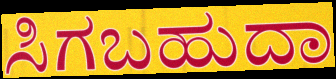
ಸಿಗಬಹುದಾ